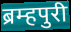
ब्रम्हपुरी